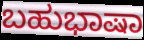
ಬಹುಭಾಷಾ